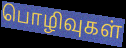
பொழிவுகள்